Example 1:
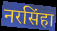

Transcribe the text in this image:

नरसिंहा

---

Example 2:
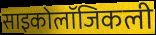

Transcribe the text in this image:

साइकोलॉजिकली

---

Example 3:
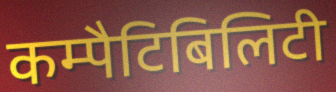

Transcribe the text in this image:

कम्पैटिबिलिटी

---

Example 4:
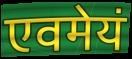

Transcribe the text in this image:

एवमेयं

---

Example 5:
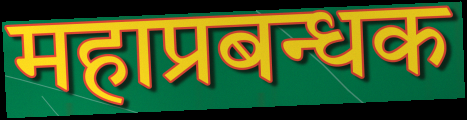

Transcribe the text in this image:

महाप्रबन्धक